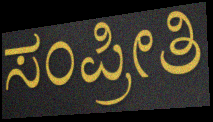
ಸಂಪ್ರೀತಿ